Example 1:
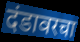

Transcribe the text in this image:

दंडावरचा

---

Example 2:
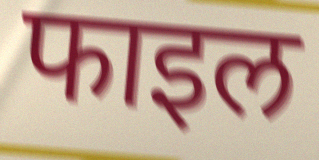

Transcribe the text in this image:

फाइल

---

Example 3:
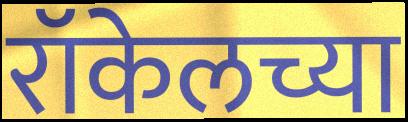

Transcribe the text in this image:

रॉकेलच्या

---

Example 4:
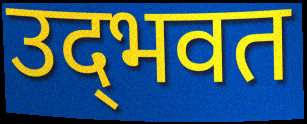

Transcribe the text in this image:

उद्‌भवत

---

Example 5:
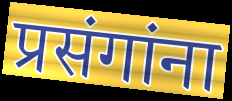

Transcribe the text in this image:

प्रसंगांना